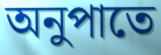
অনুপাতে